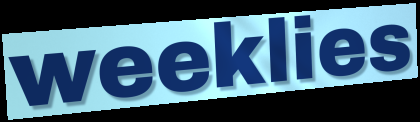
weeklies